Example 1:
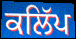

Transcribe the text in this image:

ਕਲਿੱਪ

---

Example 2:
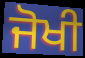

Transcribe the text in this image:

ਜੋਖੀ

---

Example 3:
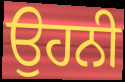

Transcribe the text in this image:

ਉਹਨੀ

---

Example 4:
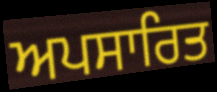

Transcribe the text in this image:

ਅਪਸਾਰਿਤ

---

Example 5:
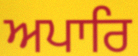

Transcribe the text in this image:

ਅਪਾਰਿ